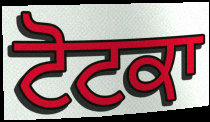
ਟੋਟਕਾ